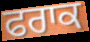
ਫਰਾਕ